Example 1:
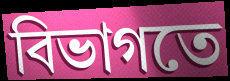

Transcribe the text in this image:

বিভাগতে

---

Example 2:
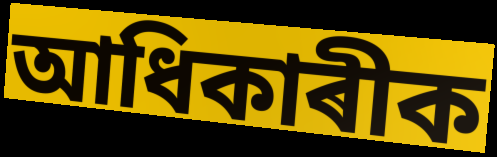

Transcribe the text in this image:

আধিকাৰীক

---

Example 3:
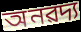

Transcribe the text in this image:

অনৱদ্য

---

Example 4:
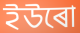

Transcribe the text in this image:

ইউৰো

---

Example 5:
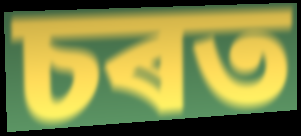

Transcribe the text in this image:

চৰত